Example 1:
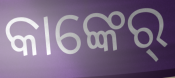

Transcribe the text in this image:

କାଙ୍କେର୍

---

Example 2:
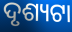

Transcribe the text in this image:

ଦୃଶ୍ୟଟା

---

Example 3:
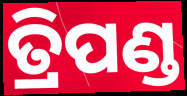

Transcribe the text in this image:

ତ୍ରିପଣ୍ଡ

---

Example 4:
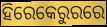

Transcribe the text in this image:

ହିରେକେରୁରରେ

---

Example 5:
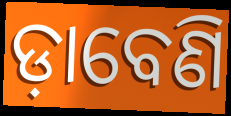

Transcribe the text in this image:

ଡ଼ାବେଣି